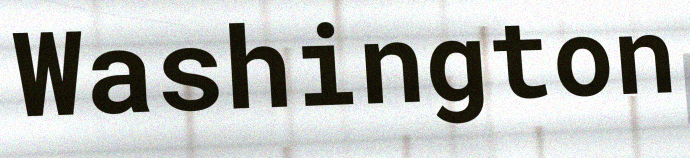
Washington